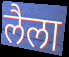
लैला